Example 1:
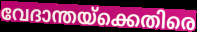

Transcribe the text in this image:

വേദാന്തയ്ക്കെതിരെ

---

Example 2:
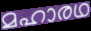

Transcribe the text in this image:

മഹാരഥ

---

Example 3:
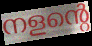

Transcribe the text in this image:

നളന്റെ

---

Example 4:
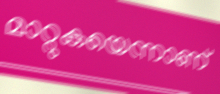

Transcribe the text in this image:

മാറ്റുകയെന്നാണ്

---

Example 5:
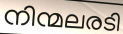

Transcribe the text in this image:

നിന്മലരടി